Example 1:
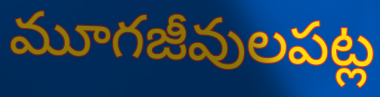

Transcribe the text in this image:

మూగజీవులపట్ల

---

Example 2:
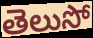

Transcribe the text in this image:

తెలుసో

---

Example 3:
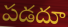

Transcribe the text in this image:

పడదూ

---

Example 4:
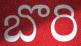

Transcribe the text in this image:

బొరి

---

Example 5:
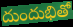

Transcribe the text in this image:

దుందుభితో